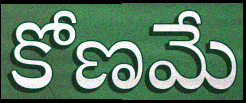
కోణమే